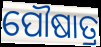
ପୌଷାତ୍ର